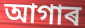
আগাৰ